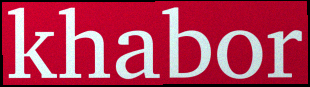
khabor